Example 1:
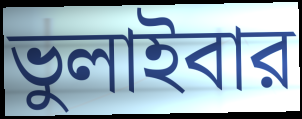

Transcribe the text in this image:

ভুলাইবার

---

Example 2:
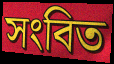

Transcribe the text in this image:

সংবিত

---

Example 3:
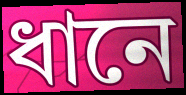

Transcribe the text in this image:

ধানে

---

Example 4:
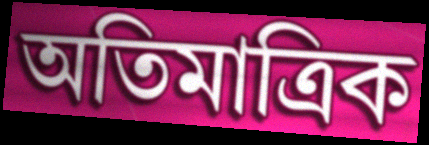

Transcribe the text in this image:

অতিমাত্রিক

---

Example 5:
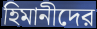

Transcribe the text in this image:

হিমানীদের